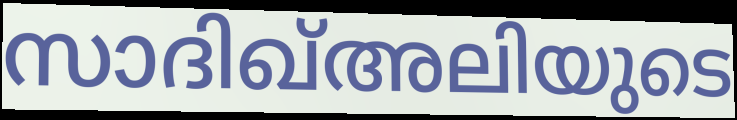
സാദിഖ്അലിയുടെ